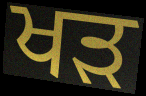
ਖੜ